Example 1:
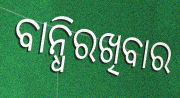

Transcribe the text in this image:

ବାନ୍ଧିରଖିବାର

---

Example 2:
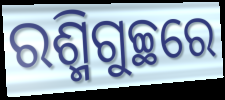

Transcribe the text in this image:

ରଶ୍ମିଗୁଚ୍ଛରେ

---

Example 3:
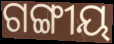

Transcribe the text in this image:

ଗଙ୍ଗୀୟ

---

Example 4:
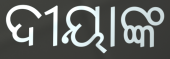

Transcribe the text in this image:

ଦୀୟାଙ୍କ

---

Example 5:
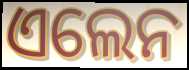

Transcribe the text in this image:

ଏଲେନ